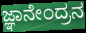
ಜ್ಞಾನೇಂದ್ರನ